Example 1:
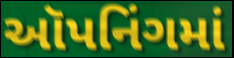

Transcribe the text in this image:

ઑપનિંગમાં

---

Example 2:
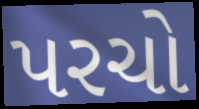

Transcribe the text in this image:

પરચો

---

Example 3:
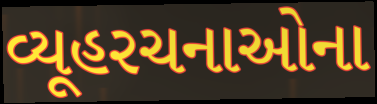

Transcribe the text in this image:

વ્યૂહરચનાઓના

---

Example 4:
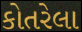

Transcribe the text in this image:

કોતરેલા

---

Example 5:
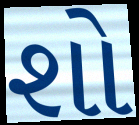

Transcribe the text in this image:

શો